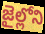
జైల్లోని